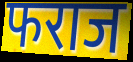
फराज